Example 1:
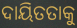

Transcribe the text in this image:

ଦାୟିତତାକୁ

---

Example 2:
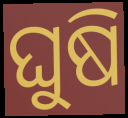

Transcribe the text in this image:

ଘୁଷି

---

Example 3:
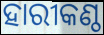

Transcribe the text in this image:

ହାରୀକଣ୍ଠ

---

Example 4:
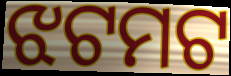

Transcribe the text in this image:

ଝଟମଟ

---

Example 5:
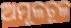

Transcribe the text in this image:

ଅମୂଳଚୂଳ